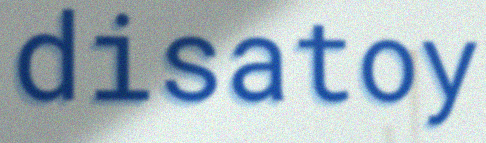
disatoy